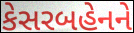
કેસરબહેનને